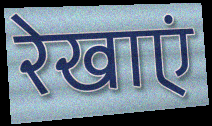
रेखाएं